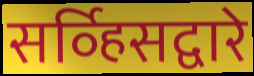
सर्व्हिसद्वारे